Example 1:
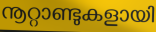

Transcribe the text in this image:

നൂറ്റാണ്ടുകളായി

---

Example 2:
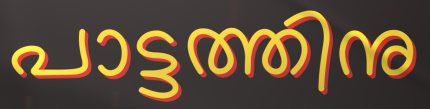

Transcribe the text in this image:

പാട്ടത്തിനു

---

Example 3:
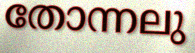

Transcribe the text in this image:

തോന്നലു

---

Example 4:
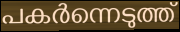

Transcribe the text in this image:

പകർന്നെടുത്ത്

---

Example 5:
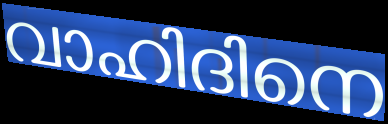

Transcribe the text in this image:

വാഹിദിനെ